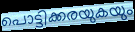
പൊട്ടിക്കരയുകയും